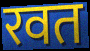
रवत